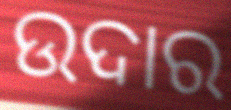
ଉଦାର